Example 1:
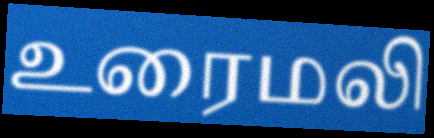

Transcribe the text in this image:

உரைமலி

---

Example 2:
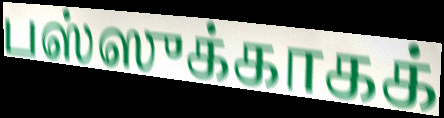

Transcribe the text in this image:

பஸ்ஸுக்காகக்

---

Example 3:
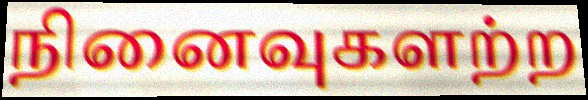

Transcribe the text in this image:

நினைவுகளற்ற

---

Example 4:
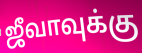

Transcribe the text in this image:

ஜீவாவுக்கு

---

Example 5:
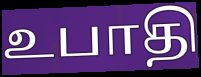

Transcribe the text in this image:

உபாதி